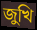
জুখি